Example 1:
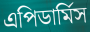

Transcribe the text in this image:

এপিডার্মিস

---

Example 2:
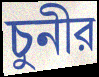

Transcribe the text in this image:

চুনীর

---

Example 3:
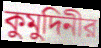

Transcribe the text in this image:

কুমুদিনীর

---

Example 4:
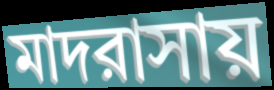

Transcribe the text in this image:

মাদরাসায়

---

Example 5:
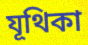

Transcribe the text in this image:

যূথিকা